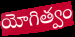
యోగిత్వం